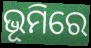
ଭୂମିରେ